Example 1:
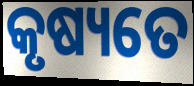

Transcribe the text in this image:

କୃଷ୍ୟତେ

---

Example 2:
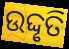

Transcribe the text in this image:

ଉଦ୍ଦୃତି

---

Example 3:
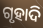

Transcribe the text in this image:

ଗୃହାଦି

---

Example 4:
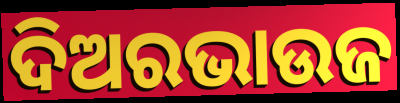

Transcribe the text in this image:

ଦିଅରଭାଉଜ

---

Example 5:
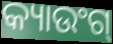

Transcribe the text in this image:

କ୍ୟାଉଂଗ୍